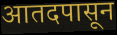
आतदपासून